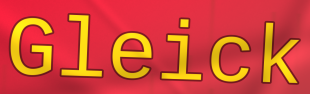
Gleick